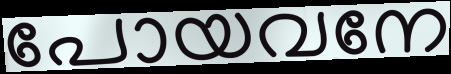
പോയവനേ